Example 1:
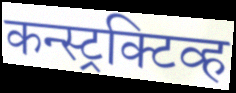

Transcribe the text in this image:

कन्स्ट्रक्टिव्ह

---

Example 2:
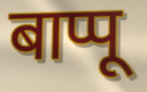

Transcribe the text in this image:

बाप्पू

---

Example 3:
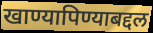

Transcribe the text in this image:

खाण्यापिण्याबद्दल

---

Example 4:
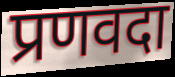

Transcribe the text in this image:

प्रणवदा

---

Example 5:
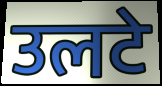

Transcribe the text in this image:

उलटे